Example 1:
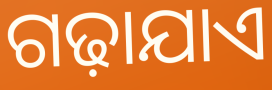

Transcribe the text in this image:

ଗଢ଼ାଯାଏ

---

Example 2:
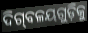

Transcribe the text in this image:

ଦିଗ୍‌ବଳୟଗୁଡ଼ିକୁ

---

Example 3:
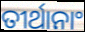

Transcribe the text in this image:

ତୀର୍ଥାନାଂ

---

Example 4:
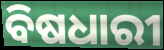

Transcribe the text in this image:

ବିଷଧାରୀ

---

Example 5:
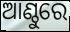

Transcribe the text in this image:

ଆଣ୍ଠୁରେ